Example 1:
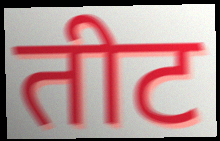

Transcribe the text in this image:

तीट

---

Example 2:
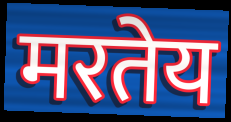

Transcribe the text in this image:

मरतेय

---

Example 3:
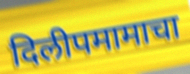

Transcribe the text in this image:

दिलीपमामाचा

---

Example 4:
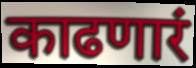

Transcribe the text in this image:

काढणारं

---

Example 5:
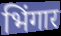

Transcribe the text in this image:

भिंगार